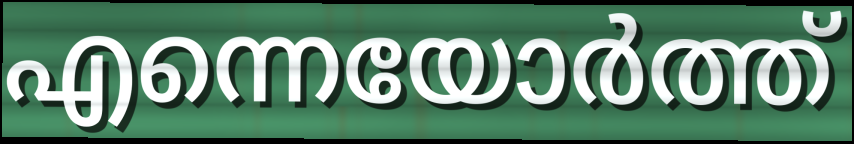
എന്നെയോർത്ത്